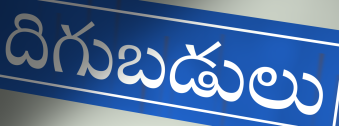
దిగుబడులు